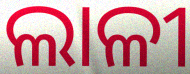
ଲାଳୀ